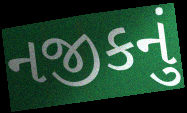
નજીકનું